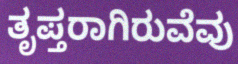
ತೃಪ್ತರಾಗಿರುವೆವು